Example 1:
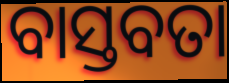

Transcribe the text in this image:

ବାସ୍ତବତା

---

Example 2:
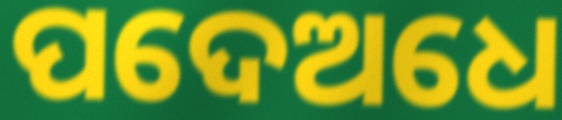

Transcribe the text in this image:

ପଦେଅଧେ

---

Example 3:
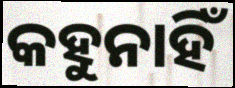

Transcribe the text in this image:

କହୁନାହିଁ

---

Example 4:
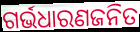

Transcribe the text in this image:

ଗର୍ଭଧାରଣଜନିତ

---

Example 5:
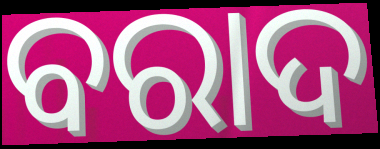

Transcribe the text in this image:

ବରାଦ